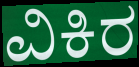
ವಿಕಿರ